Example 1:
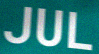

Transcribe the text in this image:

JUL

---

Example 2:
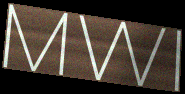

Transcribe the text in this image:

MWI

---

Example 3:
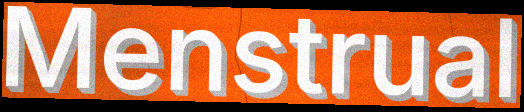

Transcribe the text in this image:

Menstrual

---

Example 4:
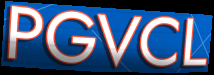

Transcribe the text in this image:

PGVCL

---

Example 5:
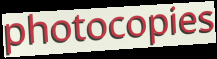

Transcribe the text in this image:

photocopies